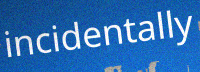
incidentally